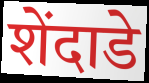
शेंदाडे